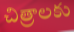
చిత్రాలకు